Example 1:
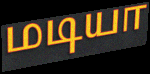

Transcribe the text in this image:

மடியா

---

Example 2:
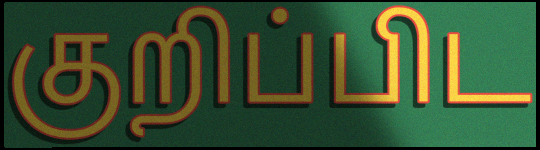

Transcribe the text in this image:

குறிப்பிட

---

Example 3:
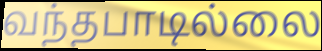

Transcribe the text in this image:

வந்தபாடில்லை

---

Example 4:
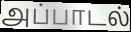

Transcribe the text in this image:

அப்பாடல்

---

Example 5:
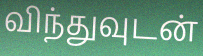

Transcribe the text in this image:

விந்துவுடன்